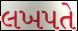
લખપતે